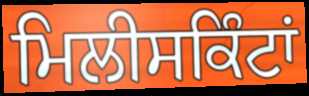
ਮਿਲੀਸਕਿੰਟਾਂ